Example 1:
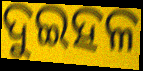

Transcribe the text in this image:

ଦୁଇହଳ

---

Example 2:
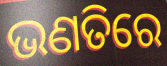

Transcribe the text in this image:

ଭଣତିରେ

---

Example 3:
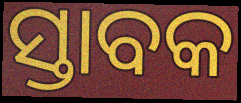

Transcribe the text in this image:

ସ୍ତାବକ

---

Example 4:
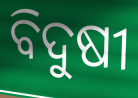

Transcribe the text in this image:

ବିଦୁଷୀ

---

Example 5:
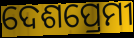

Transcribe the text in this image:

ଦେଶପ୍ରେମୀ